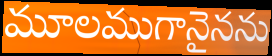
మూలముగానైనను